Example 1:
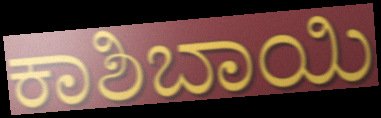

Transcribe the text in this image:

ಕಾಶಿಬಾಯಿ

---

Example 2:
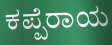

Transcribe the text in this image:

ಕಪ್ಪೆರಾಯ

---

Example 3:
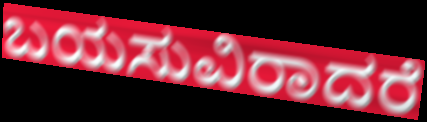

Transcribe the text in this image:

ಬಯಸುವಿರಾದರೆ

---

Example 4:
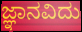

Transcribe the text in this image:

ಜ್ಞಾನವಿದು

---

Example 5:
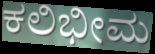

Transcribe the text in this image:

ಕಲಿಭೀಮ